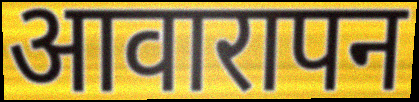
आवारापन